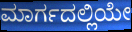
ಮಾರ್ಗದಲ್ಲಿಯೇ